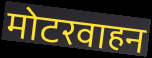
मोटरवाहन